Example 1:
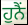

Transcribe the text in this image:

ਹੁਨੈਂ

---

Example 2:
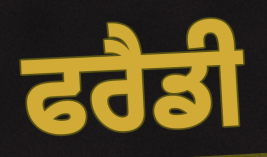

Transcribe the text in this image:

ਫਰੈਡੀ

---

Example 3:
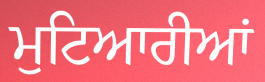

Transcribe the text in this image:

ਮੁਟਿਆਰੀਆਂ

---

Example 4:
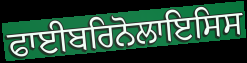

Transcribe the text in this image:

ਫਾਈਬਰਿਨੋਲਾਇਸਿਸ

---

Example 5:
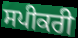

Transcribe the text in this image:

ਸਪੀਕਰੀ